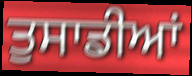
ਤੁਸਾਡੀਆਂ